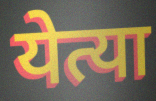
येत्या